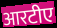
आरटीए